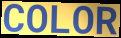
COLOR